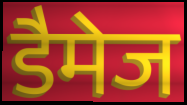
डैमेज